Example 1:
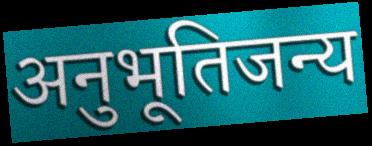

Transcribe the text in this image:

अनुभूतिजन्य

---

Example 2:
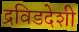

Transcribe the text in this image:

द्रविडदेशी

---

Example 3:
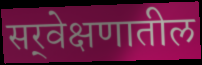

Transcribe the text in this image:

सर्वेक्षणातील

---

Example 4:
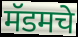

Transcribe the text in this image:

मॅडमचे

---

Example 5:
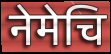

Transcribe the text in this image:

नेमेचि